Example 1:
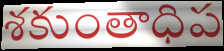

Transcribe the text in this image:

శకుంతాధిప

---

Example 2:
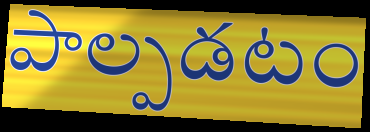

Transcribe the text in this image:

పాల్పడటం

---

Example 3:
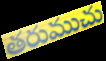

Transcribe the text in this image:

తరుముచు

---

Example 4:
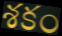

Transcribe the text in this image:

శకం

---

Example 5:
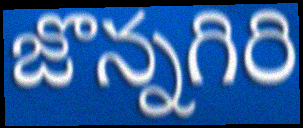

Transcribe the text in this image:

జొన్నగిరి